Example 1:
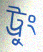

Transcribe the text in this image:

ট্রুং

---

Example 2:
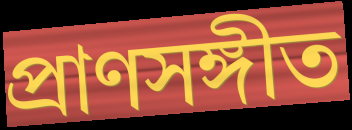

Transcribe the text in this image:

প্রাণসঙ্গীত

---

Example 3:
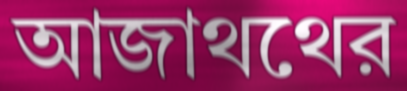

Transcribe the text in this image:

আজাথথের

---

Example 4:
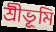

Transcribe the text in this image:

শ্রীভূমি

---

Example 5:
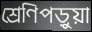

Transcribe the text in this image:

শ্রেণিপড়ুয়া